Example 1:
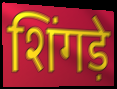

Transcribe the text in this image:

शिंगड़े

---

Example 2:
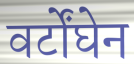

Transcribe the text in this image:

वर्टोंघेन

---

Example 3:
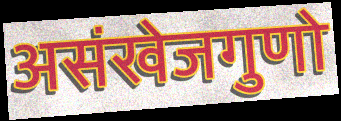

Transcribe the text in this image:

असंखेजगुणो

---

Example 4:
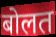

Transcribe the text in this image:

बोलत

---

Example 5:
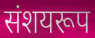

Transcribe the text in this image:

संशयरूप